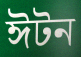
ঈটন